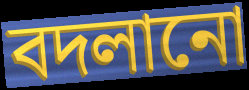
বদলানো